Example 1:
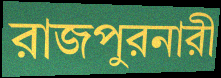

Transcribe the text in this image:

রাজপুরনারী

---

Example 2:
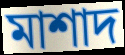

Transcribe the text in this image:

মাশাদ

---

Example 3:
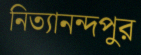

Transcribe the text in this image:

নিত্যানন্দপুর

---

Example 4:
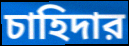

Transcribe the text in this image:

চাহিদার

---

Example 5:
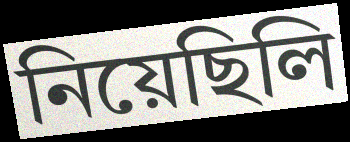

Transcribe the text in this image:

নিয়েছিলি